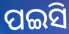
ପଇସି